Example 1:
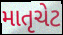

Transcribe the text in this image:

માતૃચેટ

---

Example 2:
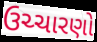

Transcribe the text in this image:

ઉચ્ચારણો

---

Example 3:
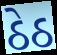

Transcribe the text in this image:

ઠેઠ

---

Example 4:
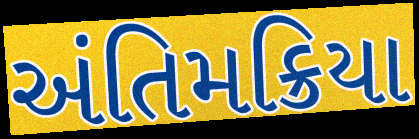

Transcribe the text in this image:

અંતિમક્રિયા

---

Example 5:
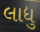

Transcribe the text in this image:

લાદ્યુ